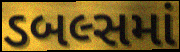
ડબલ્સમાં